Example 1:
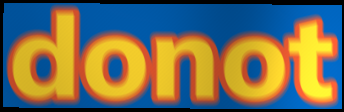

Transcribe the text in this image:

donot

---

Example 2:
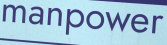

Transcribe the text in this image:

manpower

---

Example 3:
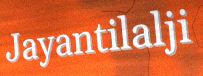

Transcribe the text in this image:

Jayantilalji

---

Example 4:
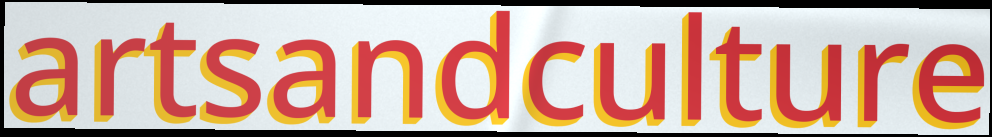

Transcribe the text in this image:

artsandculture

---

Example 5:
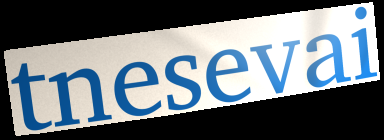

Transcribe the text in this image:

tnesevai